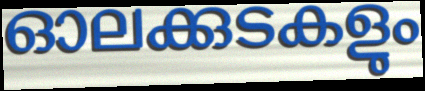
ഓലക്കുടകളും